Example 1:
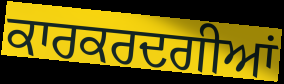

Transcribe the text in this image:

ਕਾਰਕਰਦਗੀਆਂ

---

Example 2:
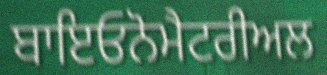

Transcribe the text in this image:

ਬਾਇਓਨੋਮੈਟਰੀਅਲ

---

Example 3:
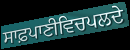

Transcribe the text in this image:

ਸਾਫ਼ਪਾਣੀਵਿਚਪਲਦੇ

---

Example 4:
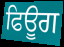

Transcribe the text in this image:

ਫਿਊਗ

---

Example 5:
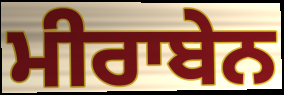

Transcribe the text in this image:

ਮੀਰਾਬੇਨ